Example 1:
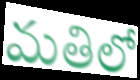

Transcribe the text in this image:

మతిలో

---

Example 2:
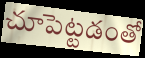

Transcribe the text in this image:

చూపెట్టడంతో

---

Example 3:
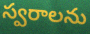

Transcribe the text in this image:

స్వరాలను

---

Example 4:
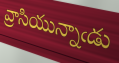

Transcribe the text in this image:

వ్రాసియున్నాఁడు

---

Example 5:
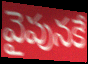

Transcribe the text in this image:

వైపునకే